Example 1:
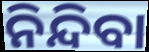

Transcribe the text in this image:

ନିନ୍ଦିବା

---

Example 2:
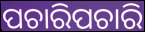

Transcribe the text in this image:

ପଚାରିପଚାରି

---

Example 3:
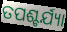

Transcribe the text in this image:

ତପଶ୍ଚର୍ଯ୍ୟା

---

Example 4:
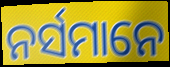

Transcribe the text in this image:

ନର୍ସମାନେ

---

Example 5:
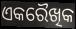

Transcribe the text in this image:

ଏକରୈଖିକ